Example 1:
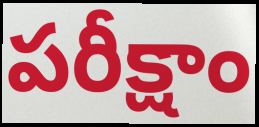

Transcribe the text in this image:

పరీక్షాం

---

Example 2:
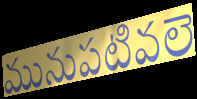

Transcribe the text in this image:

మునుపటివలె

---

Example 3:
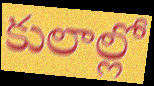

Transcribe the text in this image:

కులాల్లో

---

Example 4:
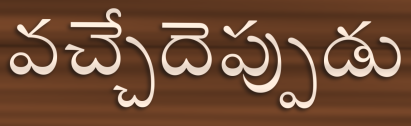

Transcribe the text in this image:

వచ్చేదెప్పుడు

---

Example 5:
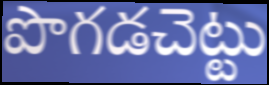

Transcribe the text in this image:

పొగడచెట్టు